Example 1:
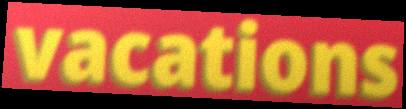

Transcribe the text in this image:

vacations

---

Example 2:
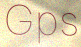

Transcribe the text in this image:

Gps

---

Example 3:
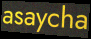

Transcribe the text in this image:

asaycha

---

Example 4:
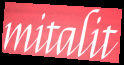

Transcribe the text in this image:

mitalit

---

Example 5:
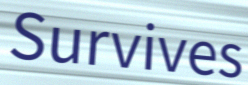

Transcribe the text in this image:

Survives